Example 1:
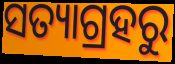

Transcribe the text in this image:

ସତ୍ୟାଗ୍ରହରୁ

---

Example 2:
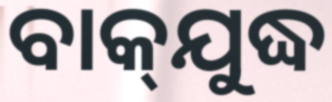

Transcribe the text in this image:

ବାକ୍‌ଯୁଦ୍ଧ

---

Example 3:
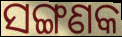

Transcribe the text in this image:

ସଙ୍ଗଣକ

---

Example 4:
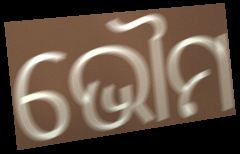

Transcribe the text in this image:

ଭୌମ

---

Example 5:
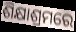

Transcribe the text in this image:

ଶିକ୍ଷାଶ୍ରମରେ